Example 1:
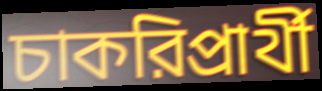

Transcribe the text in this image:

চাকরিপ্রার্থী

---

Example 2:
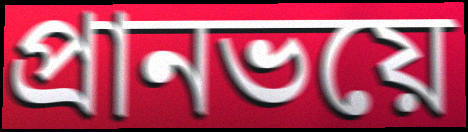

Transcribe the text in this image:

প্রানভয়ে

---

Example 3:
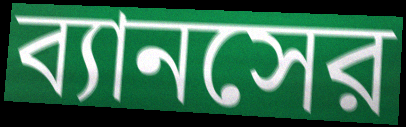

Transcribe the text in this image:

ব্যানসের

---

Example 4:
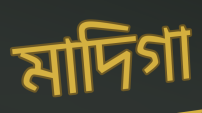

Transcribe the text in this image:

মাদিগা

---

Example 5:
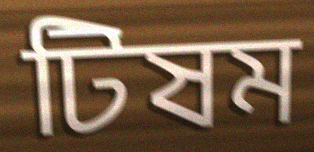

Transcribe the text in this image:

টিষম